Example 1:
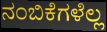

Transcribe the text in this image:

ನಂಬಿಕೆಗಳೆಲ್ಲ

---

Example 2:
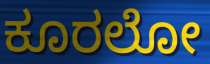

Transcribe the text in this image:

ಕೂರಲೋ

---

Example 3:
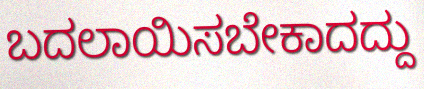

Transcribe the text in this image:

ಬದಲಾಯಿಸಬೇಕಾದದ್ದು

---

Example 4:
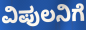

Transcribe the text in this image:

ವಿಪುಲನಿಗೆ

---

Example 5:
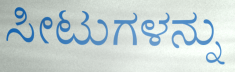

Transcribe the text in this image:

ಸೀಟುಗಳನ್ನು